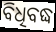
ବିଧିବଦ୍ଧ